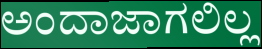
ಅಂದಾಜಾಗಲಿಲ್ಲ